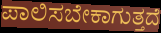
ಪಾಲಿಸಬೇಕಾಗುತ್ತದೆ